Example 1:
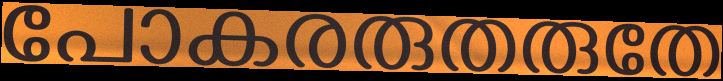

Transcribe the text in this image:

പോകരരുതരുതേ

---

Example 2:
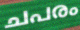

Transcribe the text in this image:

ചപരം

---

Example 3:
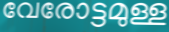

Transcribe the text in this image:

വേരോട്ടമുള്ള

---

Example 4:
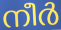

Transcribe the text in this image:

നീർ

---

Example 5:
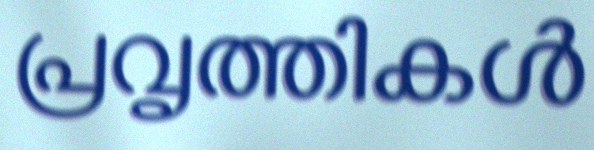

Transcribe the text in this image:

പ്രവൃത്തികൾ